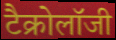
टैक्रोलॉजी